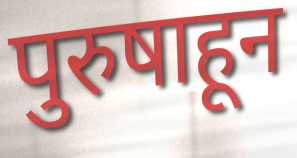
पुरुषाहून